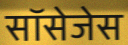
सॉसेजेस